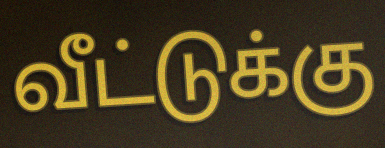
வீட்டுக்கு